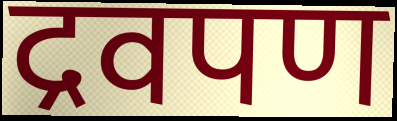
द्रवपण